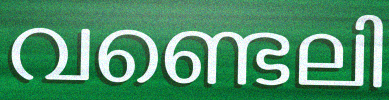
വണ്ടെലി